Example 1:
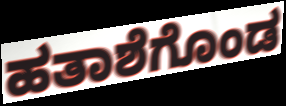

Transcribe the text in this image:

ಹತಾಶೆಗೊಂಡ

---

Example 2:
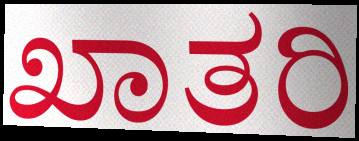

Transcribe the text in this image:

ಖಾತರಿ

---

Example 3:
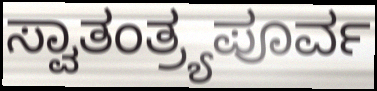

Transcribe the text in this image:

ಸ್ವಾತಂತ್ರ್ಯಪೂರ್ವ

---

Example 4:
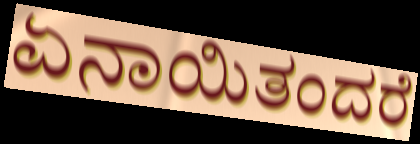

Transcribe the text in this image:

ಏನಾಯಿತಂದರೆ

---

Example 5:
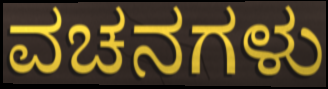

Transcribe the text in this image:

ವಚನಗಳು